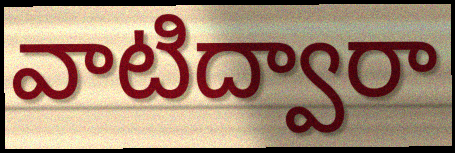
వాటిద్వారా